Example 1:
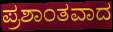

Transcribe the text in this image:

ಪ್ರಶಾಂತವಾದ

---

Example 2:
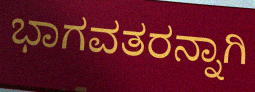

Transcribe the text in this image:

ಭಾಗವತರನ್ನಾಗಿ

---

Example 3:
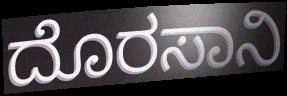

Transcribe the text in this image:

ದೊರಸಾನಿ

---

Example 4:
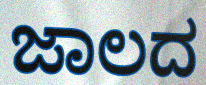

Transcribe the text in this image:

ಜಾಲದ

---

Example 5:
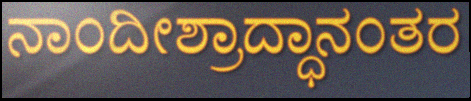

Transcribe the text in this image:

ನಾಂದೀಶ್ರಾದ್ಧಾನಂತರ